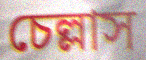
চেল্লাস